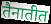
तैनातीत